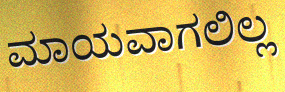
ಮಾಯವಾಗಲಿಲ್ಲ